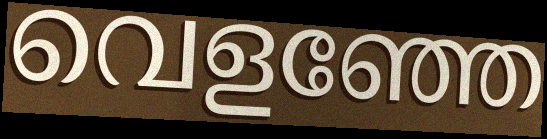
വെളഞ്ഞേ